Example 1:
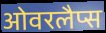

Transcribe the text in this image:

ओवरलैप्स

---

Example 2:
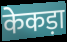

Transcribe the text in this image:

केकड़ा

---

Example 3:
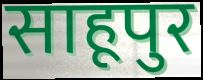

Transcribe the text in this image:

साहूपुर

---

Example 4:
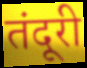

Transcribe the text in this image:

तंदूरी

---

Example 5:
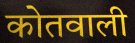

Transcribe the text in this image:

कोतवाली